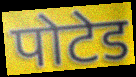
पोटेड